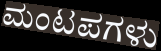
ಮಂಟಪಗಳು